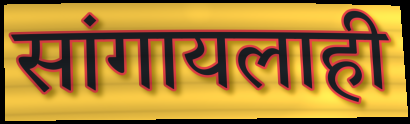
सांगायलाही